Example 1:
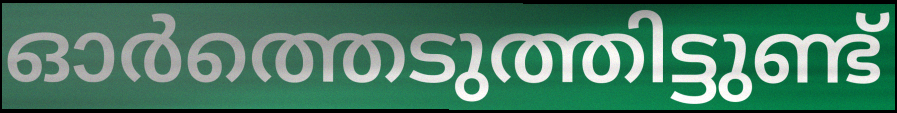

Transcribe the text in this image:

ഓർത്തെടുത്തിട്ടുണ്ട്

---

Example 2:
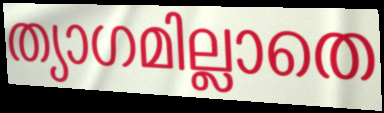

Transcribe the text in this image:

ത്യാഗമില്ലാതെ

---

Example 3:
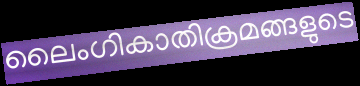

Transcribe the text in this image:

ലൈംഗികാതിക്രമങ്ങളുടെ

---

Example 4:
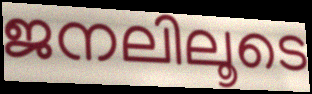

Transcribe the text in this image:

ജനലിലൂടെ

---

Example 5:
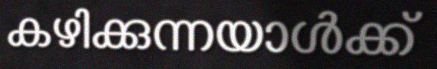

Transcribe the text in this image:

കഴിക്കുന്നയാൾക്ക്